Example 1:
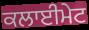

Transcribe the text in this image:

ਕਲਾਈਮੇਟ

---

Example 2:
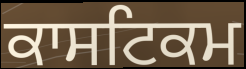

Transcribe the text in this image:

ਕਾਸਟਿਕਮ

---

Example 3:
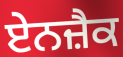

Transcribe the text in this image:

ਏਨਜ਼ੈਕ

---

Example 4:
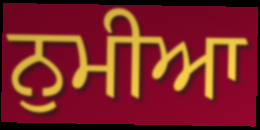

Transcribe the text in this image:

ਨੁਮੀਆ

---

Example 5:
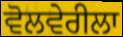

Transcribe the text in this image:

ਵੋਲਵੇਰੀਲਾ